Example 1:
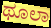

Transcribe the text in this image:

ಥೂಲಾ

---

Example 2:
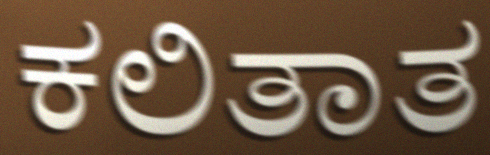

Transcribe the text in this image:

ಕಲಿತಾತ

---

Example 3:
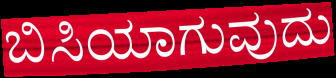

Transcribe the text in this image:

ಬಿಸಿಯಾಗುವುದು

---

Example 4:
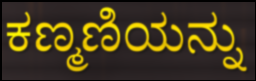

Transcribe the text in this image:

ಕಣ್ಮಣಿಯನ್ನು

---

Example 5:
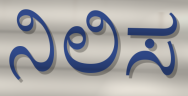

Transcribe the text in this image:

ನಿಲಿಸ